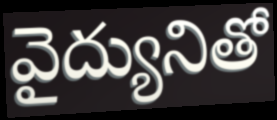
వైద్యునితో